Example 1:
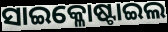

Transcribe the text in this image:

ସାଇକ୍ଳୋଷ୍ଟାଇଲ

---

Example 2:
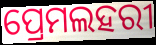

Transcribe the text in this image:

ପ୍ରେମଲହରୀ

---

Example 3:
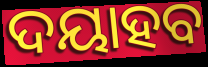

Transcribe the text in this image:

ଦୟାହବ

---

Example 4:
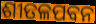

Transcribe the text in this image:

ଶୀତଳପବନ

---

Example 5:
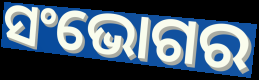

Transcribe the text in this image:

ସଂଭୋଗର